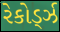
રેકોર્ડ્ઝ